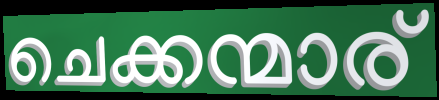
ചെക്കന്മാര്